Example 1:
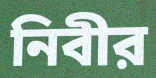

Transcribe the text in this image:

নিবীর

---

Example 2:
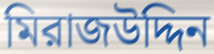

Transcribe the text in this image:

মিরাজউদ্দিন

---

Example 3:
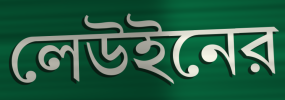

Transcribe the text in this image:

লেউইনের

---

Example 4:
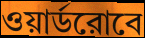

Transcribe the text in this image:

ওয়ার্ডরোবে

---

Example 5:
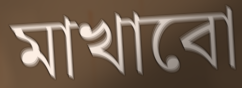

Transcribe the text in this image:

মাখাবো